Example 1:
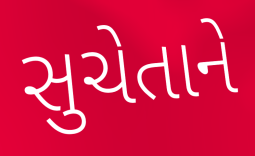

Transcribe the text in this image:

સુચેતાને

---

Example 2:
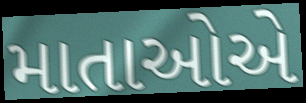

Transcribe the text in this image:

માતાઓએ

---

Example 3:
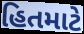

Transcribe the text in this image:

હિતમાટે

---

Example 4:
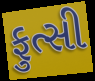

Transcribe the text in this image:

ફુત્સી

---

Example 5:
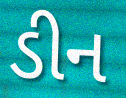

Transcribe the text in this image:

ડીન